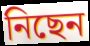
নিছেন